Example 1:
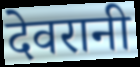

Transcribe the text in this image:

देवरानी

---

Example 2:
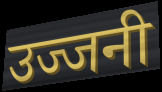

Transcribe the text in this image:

उज्जनी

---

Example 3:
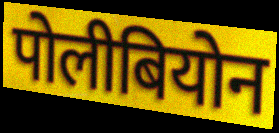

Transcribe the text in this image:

पोलीबियोन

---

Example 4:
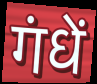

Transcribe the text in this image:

गंधें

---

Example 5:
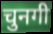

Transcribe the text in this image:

चुनगी